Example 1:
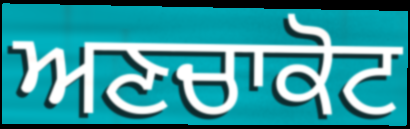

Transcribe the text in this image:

ਅਣਚਾਕੋਟ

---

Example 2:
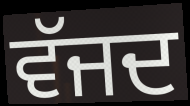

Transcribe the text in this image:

ਵੱਜਦ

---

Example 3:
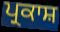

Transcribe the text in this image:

ਪ੍ਰਕਾਸ਼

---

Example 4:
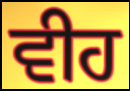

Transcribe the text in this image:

ਵੀਹ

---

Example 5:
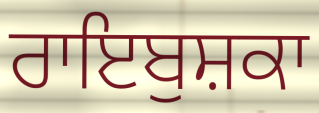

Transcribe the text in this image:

ਰਾਇਬੁਸ਼ਕਾ